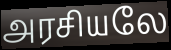
அரசியலே